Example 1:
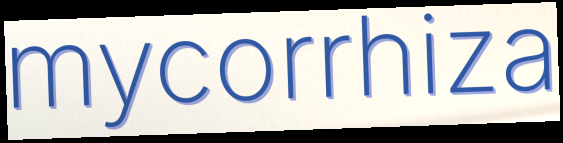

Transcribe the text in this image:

mycorrhiza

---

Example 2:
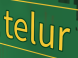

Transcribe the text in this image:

telur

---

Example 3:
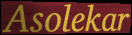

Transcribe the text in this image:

Asolekar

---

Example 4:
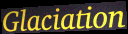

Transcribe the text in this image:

Glaciation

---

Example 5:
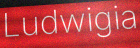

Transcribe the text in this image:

Ludwigia